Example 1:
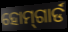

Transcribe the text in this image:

ହୋମ୍‌ଗାର୍ଡ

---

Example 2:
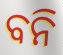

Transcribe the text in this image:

ବନି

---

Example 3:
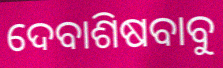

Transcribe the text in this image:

ଦେବାଶିଷବାବୁ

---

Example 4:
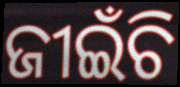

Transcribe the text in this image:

ଜୀଇଁଚି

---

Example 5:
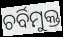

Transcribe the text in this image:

ଚର୍ବିମୁକ୍ତ